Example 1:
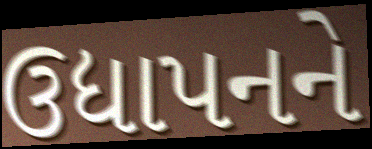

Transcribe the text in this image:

ઉદ્યાપનને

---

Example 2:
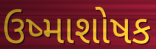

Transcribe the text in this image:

ઉષ્માશોષક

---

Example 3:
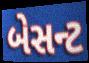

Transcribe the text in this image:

બેસન્ટ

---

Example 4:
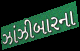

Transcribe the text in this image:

ઝાંઝીબારના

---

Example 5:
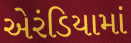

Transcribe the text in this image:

એરંડિયામાં